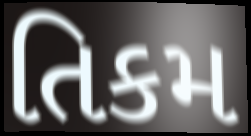
તિકમ